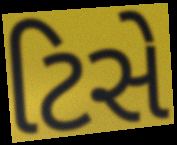
ટિસે